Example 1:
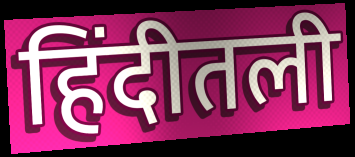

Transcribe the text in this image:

हिंदीतली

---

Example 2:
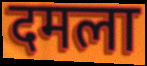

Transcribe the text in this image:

दमला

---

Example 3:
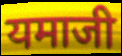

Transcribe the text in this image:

यमाजी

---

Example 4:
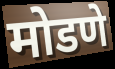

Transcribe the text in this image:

मोडणे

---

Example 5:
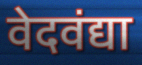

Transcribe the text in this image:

वेदवंद्या